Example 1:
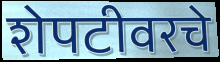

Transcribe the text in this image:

शेपटीवरचे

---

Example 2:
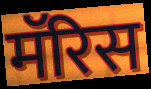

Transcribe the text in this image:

मॅरिस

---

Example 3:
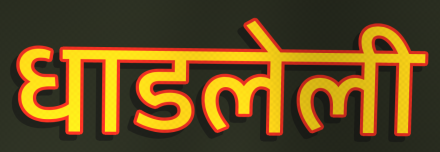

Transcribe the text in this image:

धाडलेली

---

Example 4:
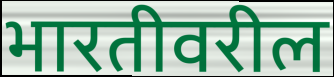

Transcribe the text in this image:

भारतीवरील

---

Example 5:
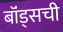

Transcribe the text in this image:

बॉंड्सची